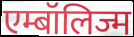
एम्बॉलिज्म